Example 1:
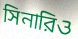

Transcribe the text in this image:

সিনারিও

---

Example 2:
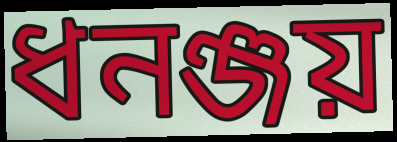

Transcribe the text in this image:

ধনঞ্জয়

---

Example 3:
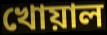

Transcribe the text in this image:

খোয়াল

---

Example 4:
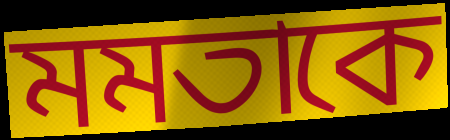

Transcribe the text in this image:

মমতাকে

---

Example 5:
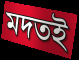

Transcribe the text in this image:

মদতই